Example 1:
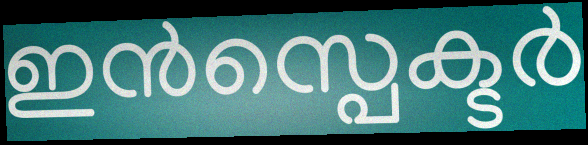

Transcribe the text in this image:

ഇൻസ്പെക്ടർ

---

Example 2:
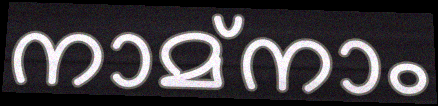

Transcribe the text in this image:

നാമ്നാം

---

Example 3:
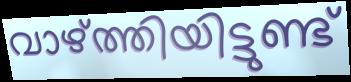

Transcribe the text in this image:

വാഴ്ത്തിയിട്ടുണ്ട്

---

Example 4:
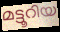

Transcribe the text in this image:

മട്ടൂറിയ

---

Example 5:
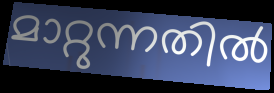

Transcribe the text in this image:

മാറ്റുന്നതിൽ